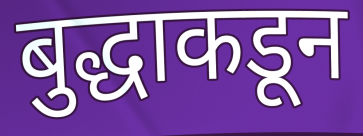
बुद्धाकडून